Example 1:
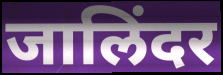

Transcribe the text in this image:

जालिंदर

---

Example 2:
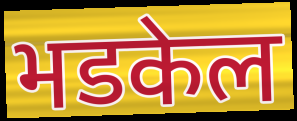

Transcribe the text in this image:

भडकेल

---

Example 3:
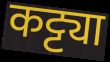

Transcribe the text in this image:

कट्ट्या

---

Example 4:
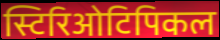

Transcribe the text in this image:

स्टिरिओटिपिकल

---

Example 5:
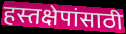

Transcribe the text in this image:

हस्तक्षेपांसाठी